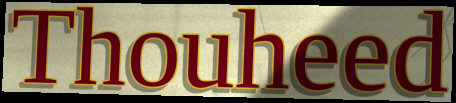
Thouheed